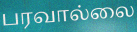
பரவால்லை